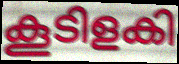
കൂടിളകി